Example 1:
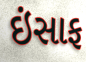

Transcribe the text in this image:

ઇંસાફ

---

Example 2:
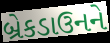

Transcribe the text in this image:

બ્રેકડાઉનને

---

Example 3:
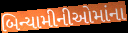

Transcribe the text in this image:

બિન્યામીનીઓમાંના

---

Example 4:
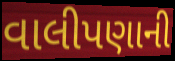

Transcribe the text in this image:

વાલીપણાની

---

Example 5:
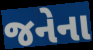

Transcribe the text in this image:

જનેના